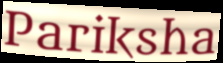
Pariksha